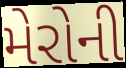
મેરોની